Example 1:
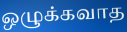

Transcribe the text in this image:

ஒழுக்கவாத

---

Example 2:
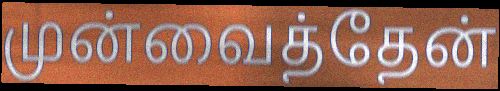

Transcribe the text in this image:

முன்வைத்தேன்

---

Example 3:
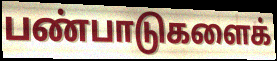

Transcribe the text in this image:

பண்பாடுகளைக்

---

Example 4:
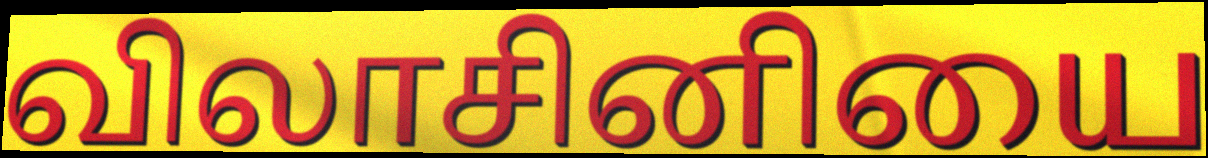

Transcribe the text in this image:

விலாசினியை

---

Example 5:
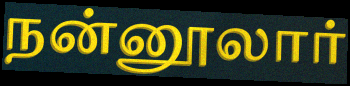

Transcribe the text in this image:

நன்னூலார்